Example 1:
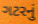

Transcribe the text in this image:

ગટરનું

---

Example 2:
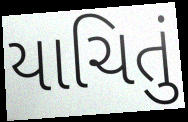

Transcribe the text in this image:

યાચિતું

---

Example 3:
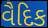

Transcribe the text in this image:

વૈદિક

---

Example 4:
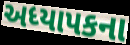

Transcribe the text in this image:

અધ્યાપકના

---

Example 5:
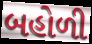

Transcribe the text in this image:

બહોળી